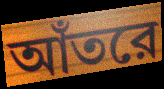
আঁতরে